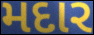
મદાર